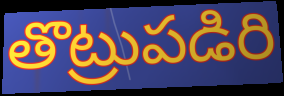
తొట్రుపడిరి